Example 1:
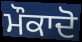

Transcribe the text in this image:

ਮੌਕਾਦੋ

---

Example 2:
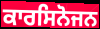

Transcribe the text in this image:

ਕਾਰਸਿਨੋਜਨ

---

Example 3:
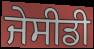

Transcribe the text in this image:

ਜੇਸੀਡੀ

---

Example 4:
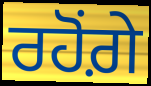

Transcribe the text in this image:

ਰਹੋਂਗ਼ੇ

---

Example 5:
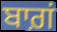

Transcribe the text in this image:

ਬਾਗ਼ਂ